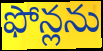
ఫోన్లను